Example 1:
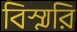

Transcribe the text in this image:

বিস্মরি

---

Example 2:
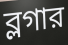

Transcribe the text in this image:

ব্লগার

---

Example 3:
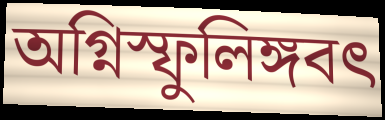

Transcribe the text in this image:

অগ্নিস্ফুলিঙ্গবৎ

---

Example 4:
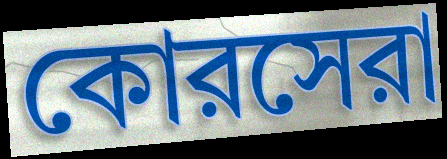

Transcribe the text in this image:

কোরসেরা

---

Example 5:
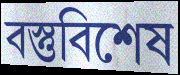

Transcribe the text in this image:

বস্তুবিশেষ